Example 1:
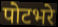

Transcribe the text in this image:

पोटभरे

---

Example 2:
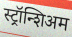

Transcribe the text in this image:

स्ट्रॉन्शिअम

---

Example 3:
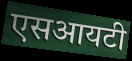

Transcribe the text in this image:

एसआयटी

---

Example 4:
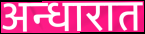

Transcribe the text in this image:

अन्धारात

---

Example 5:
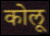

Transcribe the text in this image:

कोलू